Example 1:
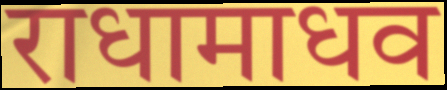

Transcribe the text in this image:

राधामाधव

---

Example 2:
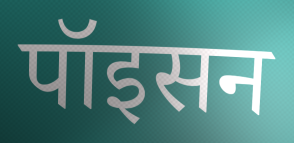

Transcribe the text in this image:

पॉइसन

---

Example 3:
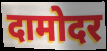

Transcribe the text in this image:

दामोदर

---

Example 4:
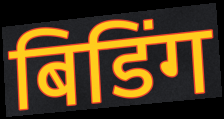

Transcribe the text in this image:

बिडिंग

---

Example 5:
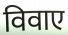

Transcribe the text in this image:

विवाए